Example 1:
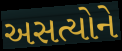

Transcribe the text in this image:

અસત્યોને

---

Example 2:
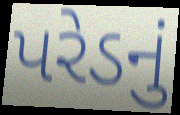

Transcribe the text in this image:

પરેડનું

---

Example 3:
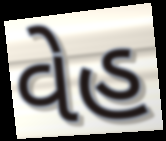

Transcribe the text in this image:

વેહ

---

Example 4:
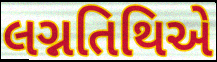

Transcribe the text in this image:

લગ્નતિથિએ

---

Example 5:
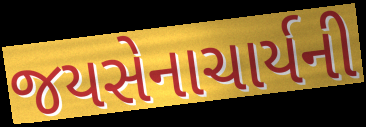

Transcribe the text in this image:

જયસેનાચાર્યની